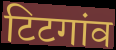
टिटगांव